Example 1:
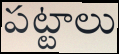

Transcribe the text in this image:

పట్టాలు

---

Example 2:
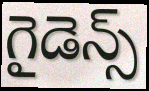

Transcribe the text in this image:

గైడెన్స్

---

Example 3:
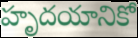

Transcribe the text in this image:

హృదయానికో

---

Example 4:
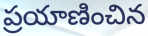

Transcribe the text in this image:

ప్రయాణించిన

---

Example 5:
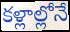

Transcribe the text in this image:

కళ్లాల్లోనే